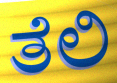
ತೆಲಿ